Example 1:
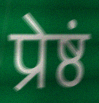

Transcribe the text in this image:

प्रेष्ठं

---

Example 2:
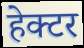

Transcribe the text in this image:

हेक्टर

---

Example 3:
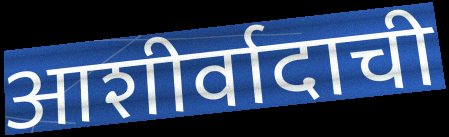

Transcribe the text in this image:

आशीर्वादाची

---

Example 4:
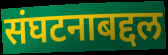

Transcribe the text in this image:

संघटनाबद्दल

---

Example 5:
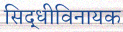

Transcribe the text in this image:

सिद्धीविनायक